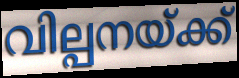
വില്പനയ്ക്ക്